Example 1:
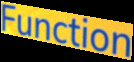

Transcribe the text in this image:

Function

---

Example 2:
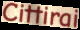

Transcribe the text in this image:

Cittirai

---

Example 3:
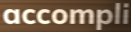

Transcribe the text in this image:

accompli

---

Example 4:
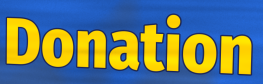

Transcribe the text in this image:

Donation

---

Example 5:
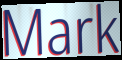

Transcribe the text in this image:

Mark